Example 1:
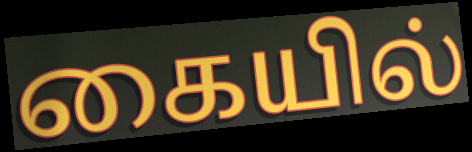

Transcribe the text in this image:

கையில்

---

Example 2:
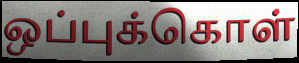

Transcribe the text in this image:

ஒப்புக்கொள்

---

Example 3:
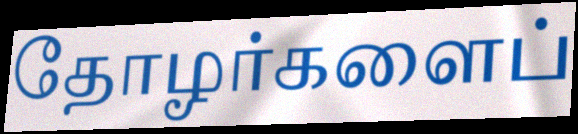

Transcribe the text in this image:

தோழர்களைப்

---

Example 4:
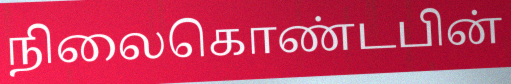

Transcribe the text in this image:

நிலைகொண்டபின்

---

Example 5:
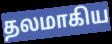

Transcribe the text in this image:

தலமாகிய